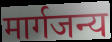
मार्गजन्य